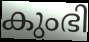
കുംഭി